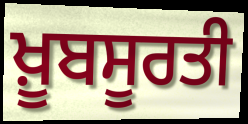
ਖ਼ੂਬਸੂਰਤੀ